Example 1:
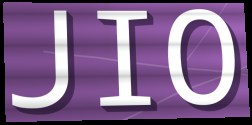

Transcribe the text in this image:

JIO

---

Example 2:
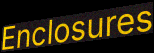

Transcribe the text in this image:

Enclosures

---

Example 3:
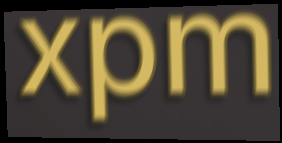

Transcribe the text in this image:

xpm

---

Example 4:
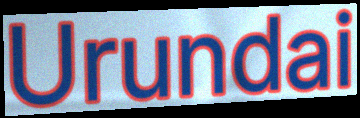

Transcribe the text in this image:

Urundai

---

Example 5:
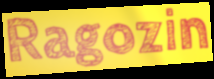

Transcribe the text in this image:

Ragozin